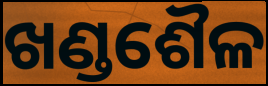
ଖଣ୍ଡଶୈଳ